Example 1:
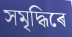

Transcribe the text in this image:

সমৃদ্ধিৰে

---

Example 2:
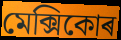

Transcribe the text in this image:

মেক্সিকোৰ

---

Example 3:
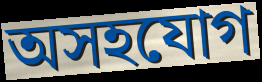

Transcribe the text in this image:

অসহযোগ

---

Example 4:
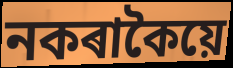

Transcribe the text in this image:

নকৰাকৈয়ে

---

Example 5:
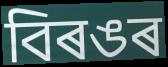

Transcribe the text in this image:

বিৰঙৰ